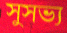
সুসভ্য